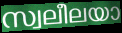
സ്വലീലയാ